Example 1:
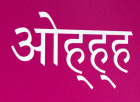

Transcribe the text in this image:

ओह्ह्ह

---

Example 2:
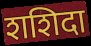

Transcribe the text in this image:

शशिदा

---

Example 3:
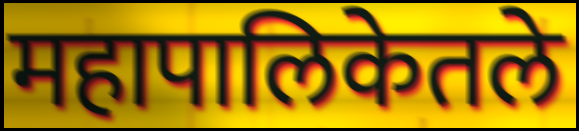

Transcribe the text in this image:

महापालिकेतले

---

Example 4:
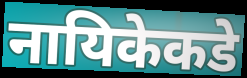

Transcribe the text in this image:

नायिकेकडे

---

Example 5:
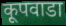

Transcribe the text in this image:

कूपवाडा